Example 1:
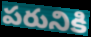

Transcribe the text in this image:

పరునికి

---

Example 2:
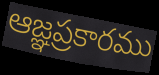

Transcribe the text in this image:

ఆజ్ఞప్రకారము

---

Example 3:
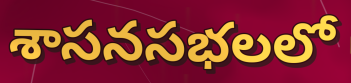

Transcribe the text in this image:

శాసనసభలలో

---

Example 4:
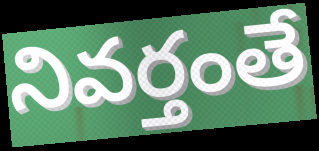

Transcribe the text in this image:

నివర్తంతే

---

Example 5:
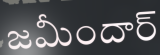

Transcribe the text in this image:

జమీందార్